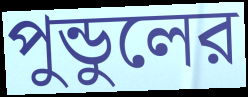
পুন্ডুলের